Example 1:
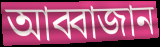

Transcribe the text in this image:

আব্বাজান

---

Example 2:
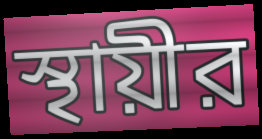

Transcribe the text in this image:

স্থায়ীর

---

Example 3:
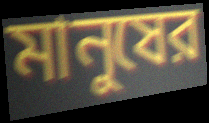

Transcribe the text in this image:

মানুষের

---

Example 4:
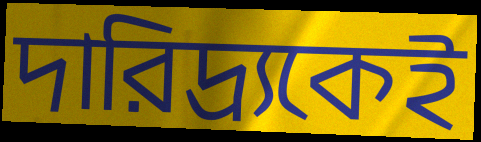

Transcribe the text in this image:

দারিদ্র্যকেই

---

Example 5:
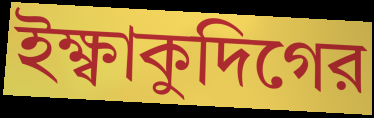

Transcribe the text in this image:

ইক্ষ্বাকুদিগের